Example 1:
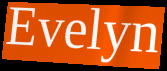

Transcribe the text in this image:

Evelyn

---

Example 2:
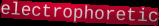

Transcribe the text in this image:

electrophoretic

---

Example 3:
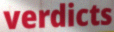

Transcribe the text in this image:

verdicts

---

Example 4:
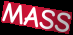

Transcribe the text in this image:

MASS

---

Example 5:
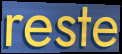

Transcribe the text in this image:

reste